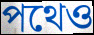
পথেও